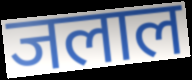
जलाल